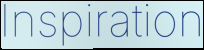
Inspiration